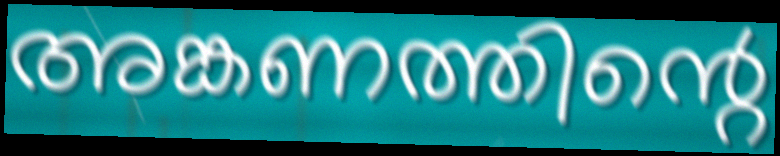
അങ്കണത്തിന്റെ